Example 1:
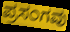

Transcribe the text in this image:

ಪ್ರಸಂಗವು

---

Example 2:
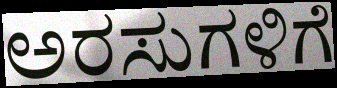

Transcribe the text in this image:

ಅರಸುಗಳಿಗೆ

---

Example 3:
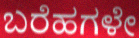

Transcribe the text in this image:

ಬರೆಹಗಳೇ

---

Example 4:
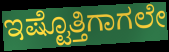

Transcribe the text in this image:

ಇಷ್ಟೊತ್ತಿಗಾಗಲೇ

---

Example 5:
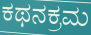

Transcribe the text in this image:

ಕಥನಕ್ರಮ